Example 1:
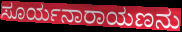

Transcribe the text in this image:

ಸೂರ್ಯನಾರಾಯಣನು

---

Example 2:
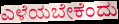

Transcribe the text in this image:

ಎಳೆಯಬೇಕೆಂದು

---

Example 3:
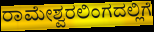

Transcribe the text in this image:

ರಾಮೇಶ್ವರಲಿಂಗದಲ್ಲಿಗೆ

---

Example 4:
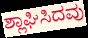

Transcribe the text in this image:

ಶ್ಲಾಘಿಸಿದವು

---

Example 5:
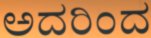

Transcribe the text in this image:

ಅದರಿಂದ